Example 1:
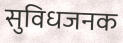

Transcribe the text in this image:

सुविधजनक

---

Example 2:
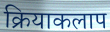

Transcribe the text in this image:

क्रियाकलाप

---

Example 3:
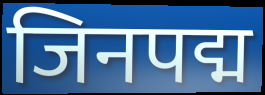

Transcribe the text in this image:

जिनपद्म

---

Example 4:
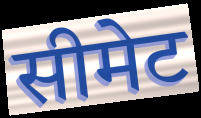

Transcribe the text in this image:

सीमेट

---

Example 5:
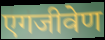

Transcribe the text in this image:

एगजीवेण